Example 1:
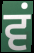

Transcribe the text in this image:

ਵਂ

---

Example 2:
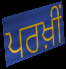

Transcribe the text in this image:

ਪਰਖ਼ੀਂ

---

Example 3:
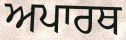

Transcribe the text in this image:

ਅਪਾਰਥ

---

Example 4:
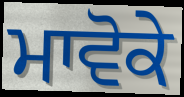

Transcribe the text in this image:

ਮਾਵੋਕੇ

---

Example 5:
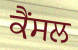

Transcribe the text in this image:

ਕੈਂਸਲ